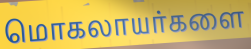
மொகலாயர்களை